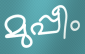
മുപ്പീം